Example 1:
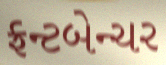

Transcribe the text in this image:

ફ્રન્ટબેન્ચર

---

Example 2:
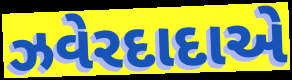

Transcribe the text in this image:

ઝવેરદાદાએ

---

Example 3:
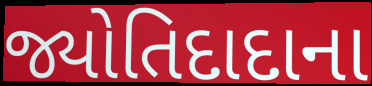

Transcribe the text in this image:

જ્યોતિદાદાના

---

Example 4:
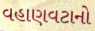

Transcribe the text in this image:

વહાણવટાનો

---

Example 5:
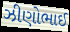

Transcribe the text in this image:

ઝીણોભાઈ